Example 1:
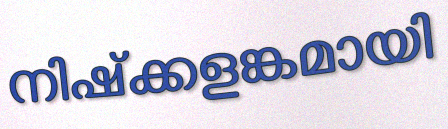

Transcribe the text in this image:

നിഷ്ക്കളങ്കമായി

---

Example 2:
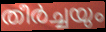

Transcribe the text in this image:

തീർച്ചയും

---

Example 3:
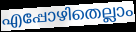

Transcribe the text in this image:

എപ്പോഴിതെല്ലാം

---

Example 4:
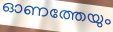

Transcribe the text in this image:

ഓണത്തേയും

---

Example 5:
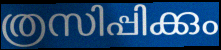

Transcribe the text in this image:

ത്രസിപ്പിക്കും